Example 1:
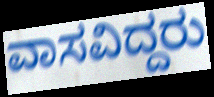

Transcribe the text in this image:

ವಾಸವಿದ್ದರು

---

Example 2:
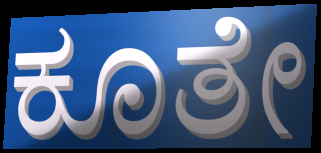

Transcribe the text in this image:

ಕೂತೇ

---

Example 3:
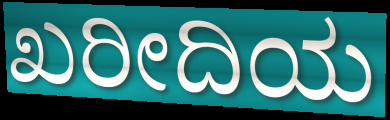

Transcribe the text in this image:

ಖರೀದಿಯ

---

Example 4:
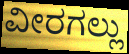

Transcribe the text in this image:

ವೀರಗಲ್ಲು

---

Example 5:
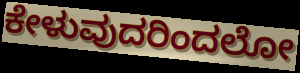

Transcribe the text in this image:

ಕೇಳುವುದರಿಂದಲೋ